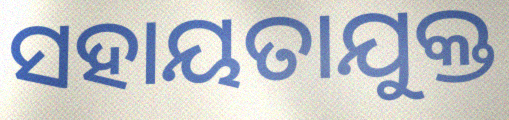
ସହାୟତାଯୁକ୍ତ